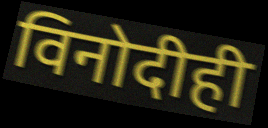
विनोदीही